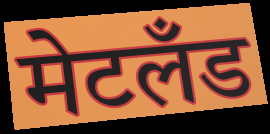
मेटलँड